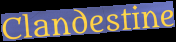
Clandestine